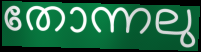
തോന്നലു